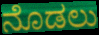
ನೊಡಲು